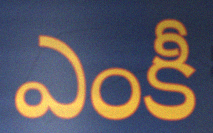
ఎంకీ